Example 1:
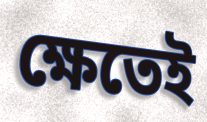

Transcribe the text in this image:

ক্ষেতেই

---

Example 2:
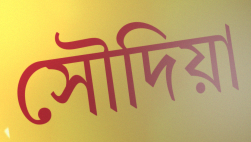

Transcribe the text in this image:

সৌদিয়া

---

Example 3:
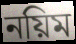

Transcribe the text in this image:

নয়িম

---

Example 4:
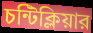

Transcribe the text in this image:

চন্টিক্লিয়ার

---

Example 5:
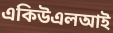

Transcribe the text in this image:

একিউএলআই